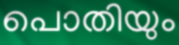
പൊതിയും